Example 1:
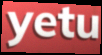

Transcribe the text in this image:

yetu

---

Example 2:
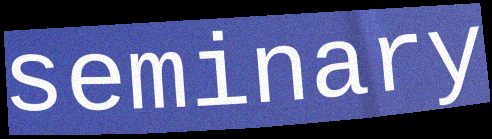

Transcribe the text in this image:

seminary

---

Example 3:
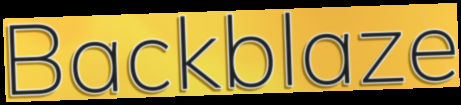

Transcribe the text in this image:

Backblaze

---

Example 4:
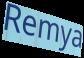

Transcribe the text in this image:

Remya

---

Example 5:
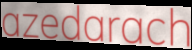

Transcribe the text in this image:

azedarach